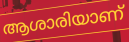
ആശാരിയാണ്